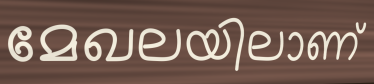
മേഖലയിലാണ്